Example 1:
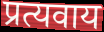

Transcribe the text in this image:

प्रत्यवाय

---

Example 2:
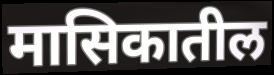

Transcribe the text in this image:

मासिकातील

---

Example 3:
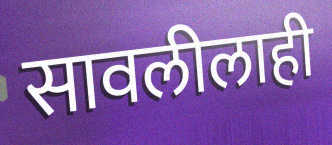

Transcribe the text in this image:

सावलीलाही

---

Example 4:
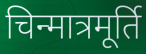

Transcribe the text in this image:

चिन्मात्रमूर्ति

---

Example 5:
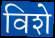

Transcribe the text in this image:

विशे